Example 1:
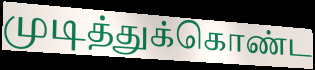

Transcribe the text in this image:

முடித்துக்கொண்ட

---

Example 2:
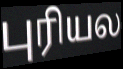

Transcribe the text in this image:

புரியல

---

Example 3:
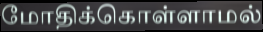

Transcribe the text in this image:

மோதிக்கொள்ளாமல்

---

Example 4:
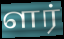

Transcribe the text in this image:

ளர்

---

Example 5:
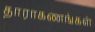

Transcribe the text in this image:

தாராகணங்கள்